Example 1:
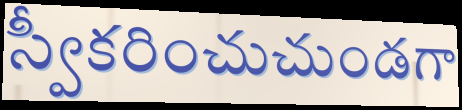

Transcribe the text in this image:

స్వీకరించుచుండగా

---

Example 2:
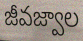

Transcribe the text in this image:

జీవజ్వాల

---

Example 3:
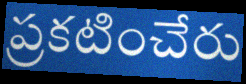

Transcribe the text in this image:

ప్రకటించేరు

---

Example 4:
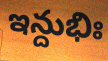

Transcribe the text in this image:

ఇన్దుభిః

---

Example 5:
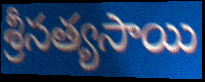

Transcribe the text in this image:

శ్రీసత్యసాయి